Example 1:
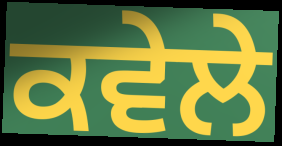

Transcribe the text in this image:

ਕਵੇਲੇ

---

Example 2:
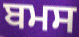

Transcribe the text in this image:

ਬਮਸ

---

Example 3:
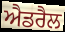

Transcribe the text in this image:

ਐਡਰੈਲ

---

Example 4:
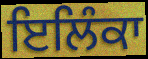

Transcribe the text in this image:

ਇਲਿੰਕਾ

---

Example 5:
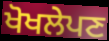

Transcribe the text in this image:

ਖੋਖਲੇਪਣ